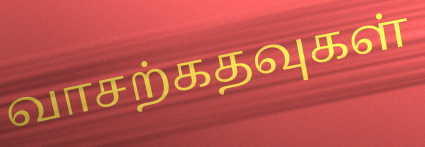
வாசற்கதவுகள்